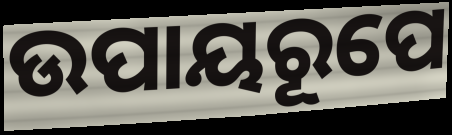
ଉପାୟରୂପେ